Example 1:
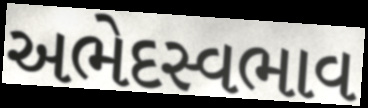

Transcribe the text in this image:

અભેદસ્વભાવ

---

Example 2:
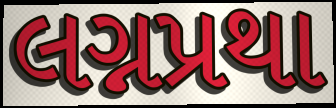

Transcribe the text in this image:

લગ્નપ્રથા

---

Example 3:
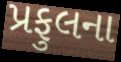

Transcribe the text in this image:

પ્રફુલના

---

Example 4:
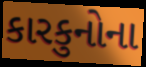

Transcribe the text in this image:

કારકુનોના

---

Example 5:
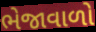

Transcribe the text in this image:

ભેજાવાળો